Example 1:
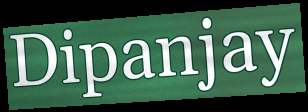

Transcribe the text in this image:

Dipanjay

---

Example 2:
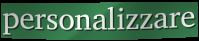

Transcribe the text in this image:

personalizzare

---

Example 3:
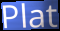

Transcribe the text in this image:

Plat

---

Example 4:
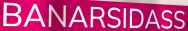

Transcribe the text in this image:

BANARSIDASS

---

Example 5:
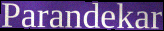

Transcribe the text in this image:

Parandekar